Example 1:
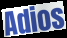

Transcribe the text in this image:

Adios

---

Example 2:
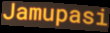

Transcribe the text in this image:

Jamupasi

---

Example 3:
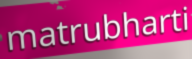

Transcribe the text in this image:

matrubharti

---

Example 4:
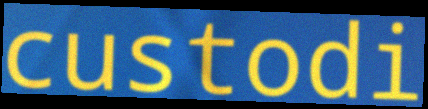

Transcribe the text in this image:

custodi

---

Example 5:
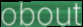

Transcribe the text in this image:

obout